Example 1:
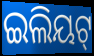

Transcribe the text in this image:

ଇଲିୟଟ୍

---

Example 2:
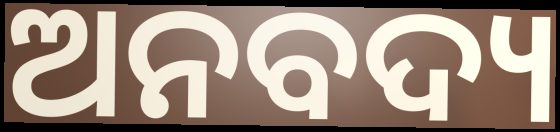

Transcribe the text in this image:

ଅନବଦ୍ୟ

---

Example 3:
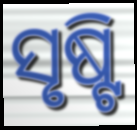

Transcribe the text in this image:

ସୃଷ୍ଟି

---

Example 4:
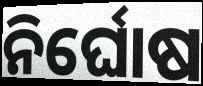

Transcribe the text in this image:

ନିର୍ଘୋଷ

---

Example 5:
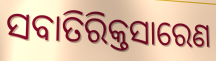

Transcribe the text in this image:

ସବାତିରିକ୍ତସାରେଣ